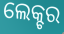
ଲେକ୍ଚର